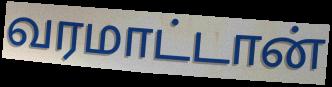
வரமாட்டான்